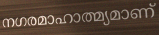
നഗരമാഹാത്മ്യമാണ്